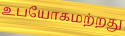
உபயோகமற்றது